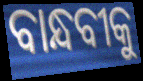
ବାନ୍ଧବୀକୁ